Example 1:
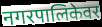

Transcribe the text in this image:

नगरपालिकेवर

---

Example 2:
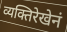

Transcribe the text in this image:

व्यक्तिरेखेनं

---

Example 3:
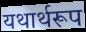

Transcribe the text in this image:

यथार्थरूप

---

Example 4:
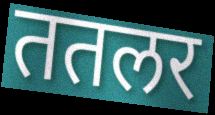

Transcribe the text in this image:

ततलर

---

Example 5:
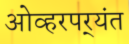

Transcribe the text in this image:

ओव्हरपर्यंत